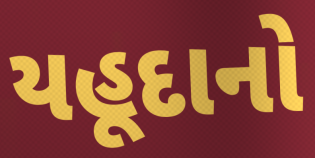
યહૂદાનો